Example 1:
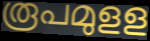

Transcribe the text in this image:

രൂപമുളള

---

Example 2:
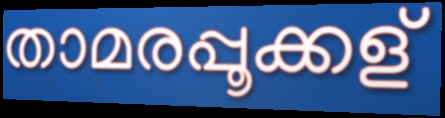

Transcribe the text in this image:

താമരപ്പൂക്കള്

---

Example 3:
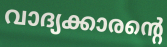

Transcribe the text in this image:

വാദ്യക്കാരന്റെ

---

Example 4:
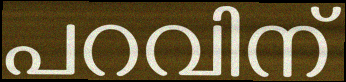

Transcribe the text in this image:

പറവിന്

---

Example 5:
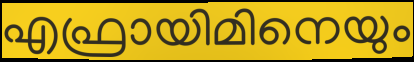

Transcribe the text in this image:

എഫ്രായിമിനെയും